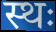
स्थः